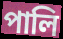
পালি